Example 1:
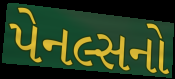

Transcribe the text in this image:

પેનલ્સનો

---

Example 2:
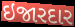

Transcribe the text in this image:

ઇજારદાર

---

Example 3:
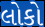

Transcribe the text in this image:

લોકો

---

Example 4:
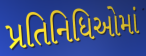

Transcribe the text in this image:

પ્રતિનિધિઓમાં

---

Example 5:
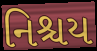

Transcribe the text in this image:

નિશ્ચય